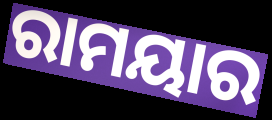
ରାମୟାର